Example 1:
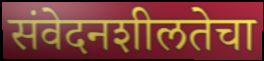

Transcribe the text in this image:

संवेदनशीलतेचा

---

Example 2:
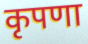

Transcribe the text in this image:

कृपणा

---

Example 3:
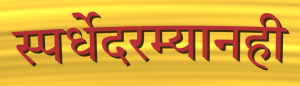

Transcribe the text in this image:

स्पर्धेदरम्यानही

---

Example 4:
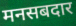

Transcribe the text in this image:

मनसबदार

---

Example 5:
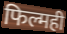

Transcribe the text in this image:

फिल्मही